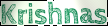
Krishnas